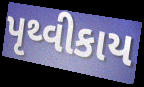
પૃથ્વીકાય